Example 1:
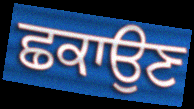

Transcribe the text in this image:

ਛਕਾਉਣ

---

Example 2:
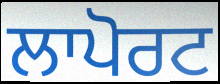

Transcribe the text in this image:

ਲਾਪੋਰਟ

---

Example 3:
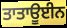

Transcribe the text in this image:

ਤਾਤਾਊਈਨ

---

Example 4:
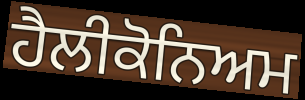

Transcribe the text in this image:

ਹੈਲੀਕੋਨਿਅਮ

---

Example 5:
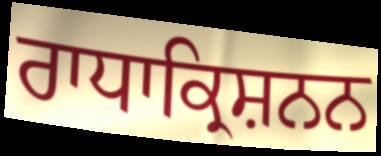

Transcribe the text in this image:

ਰਾਧਾਕ੍ਰਿਸ਼ਨਨ